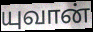
யுவான்